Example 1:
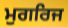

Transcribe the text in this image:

ਮੁਗਰਿਜ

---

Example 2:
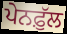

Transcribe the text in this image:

ਪੇਨਫ਼ੁੱਲ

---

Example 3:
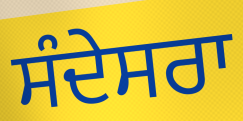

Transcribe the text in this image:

ਸੰਦੇਸਰਾ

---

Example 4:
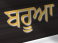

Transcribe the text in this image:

ਬਰੂਆ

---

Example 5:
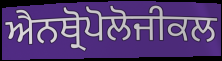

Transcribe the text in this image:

ਐਨਥ੍ਰੋਪੋਲੋਜੀਕਲ